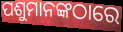
ପଶୁମାନଙ୍କଠାରେ